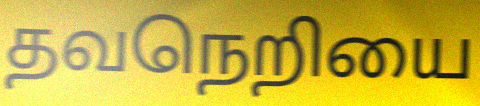
தவநெறியை